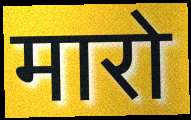
मारो